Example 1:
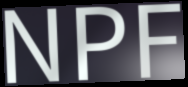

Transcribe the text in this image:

NPF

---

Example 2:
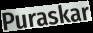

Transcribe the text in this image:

Puraskar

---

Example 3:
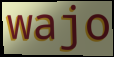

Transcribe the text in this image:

wajo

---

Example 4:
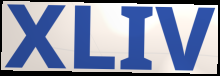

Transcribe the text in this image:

XLIV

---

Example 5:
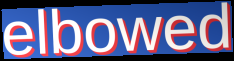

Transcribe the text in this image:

elbowed